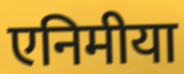
एनिमीया